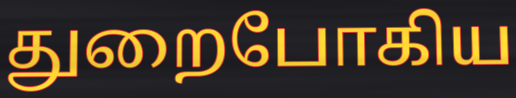
துறைபோகிய